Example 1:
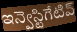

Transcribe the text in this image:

ఇన్వెస్టిగేటివ్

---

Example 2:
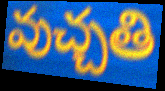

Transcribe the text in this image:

వుచ్చతి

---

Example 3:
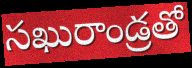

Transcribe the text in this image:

సఖురాండ్రతో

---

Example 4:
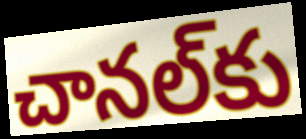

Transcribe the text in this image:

చానల్‌కు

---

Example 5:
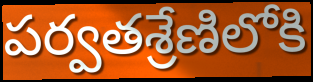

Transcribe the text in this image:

పర్వతశ్రేణిలోకి